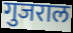
गुजराल